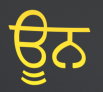
ਊਨ